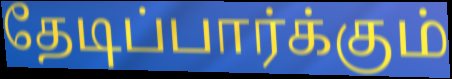
தேடிப்பார்க்கும்